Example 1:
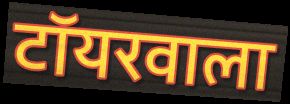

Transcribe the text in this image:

टॉयरवाला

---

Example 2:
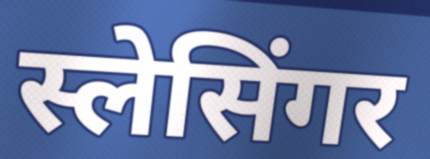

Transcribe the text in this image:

स्लेसिंगर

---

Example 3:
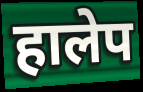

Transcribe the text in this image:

हालेप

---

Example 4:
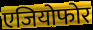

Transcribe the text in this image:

एजियोफोर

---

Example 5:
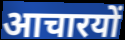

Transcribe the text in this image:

आचारयों